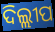
ଦିଲ୍ଲୀପ